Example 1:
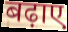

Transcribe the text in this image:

बढ़ाए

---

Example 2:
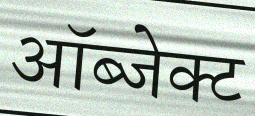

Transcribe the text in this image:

ऑब्जेक्ट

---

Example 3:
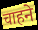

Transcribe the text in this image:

चाहने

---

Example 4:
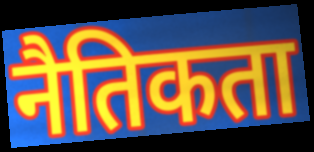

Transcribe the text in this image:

नैतिकता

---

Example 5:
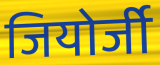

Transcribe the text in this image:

जियोर्जी